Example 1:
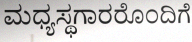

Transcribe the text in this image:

ಮಧ್ಯಸ್ಥಗಾರರೊಂದಿಗೆ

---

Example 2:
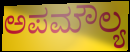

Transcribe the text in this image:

ಅಪಮೌಲ್ಯ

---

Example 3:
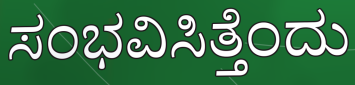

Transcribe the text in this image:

ಸಂಭವಿಸಿತ್ತೆಂದು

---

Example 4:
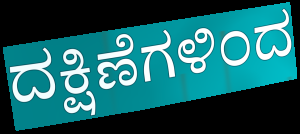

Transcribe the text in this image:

ದಕ್ಷಿಣೆಗಳಿಂದ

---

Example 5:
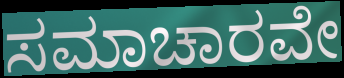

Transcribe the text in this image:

ಸಮಾಚಾರವೇ